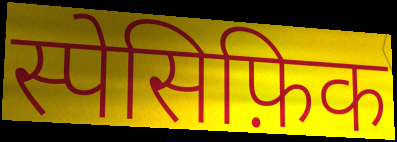
स्पेसिफ़िक